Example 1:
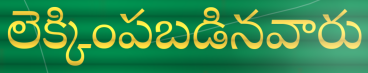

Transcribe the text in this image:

లెక్కింపబడినవారు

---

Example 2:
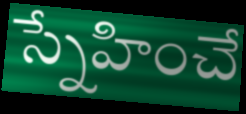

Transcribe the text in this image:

స్నేహించే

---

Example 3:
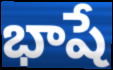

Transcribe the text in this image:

భాషే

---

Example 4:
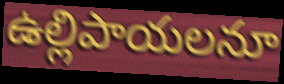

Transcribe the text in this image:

ఉల్లిపాయలనూ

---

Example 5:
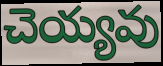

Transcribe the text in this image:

చెయ్యవు